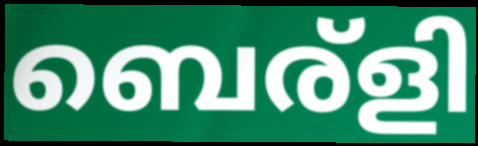
ബെര്ളി